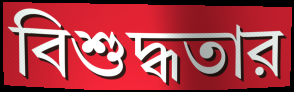
বিশুদ্ধতার